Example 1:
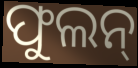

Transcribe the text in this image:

ଫୁଲନ୍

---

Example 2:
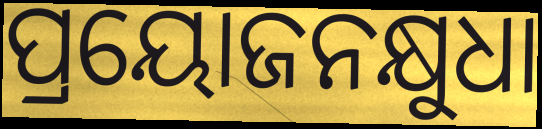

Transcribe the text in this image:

ପ୍ରୟୋଜନକ୍ଷୁଧା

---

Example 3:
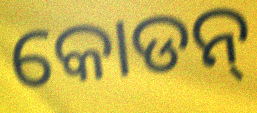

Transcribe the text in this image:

କୋଡନ୍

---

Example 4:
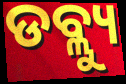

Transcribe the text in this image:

ଡବ୍ଲ୍ୟୁ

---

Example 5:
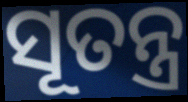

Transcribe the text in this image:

ସୂତନ୍ତ୍ର